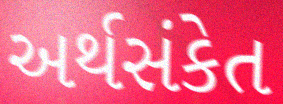
અર્થસંકેત